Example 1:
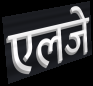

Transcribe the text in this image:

एलजे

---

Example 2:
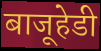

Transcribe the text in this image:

बाजूहेडी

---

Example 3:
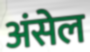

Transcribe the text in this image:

अंसेल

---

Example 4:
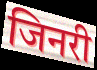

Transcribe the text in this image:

जिनरी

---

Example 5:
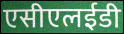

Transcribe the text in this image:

एसीएलईडी